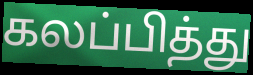
கலப்பித்து